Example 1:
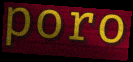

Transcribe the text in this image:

poro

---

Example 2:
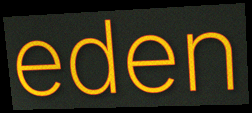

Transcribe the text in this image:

eden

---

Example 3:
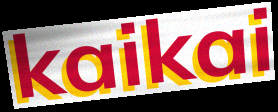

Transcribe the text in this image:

kaikai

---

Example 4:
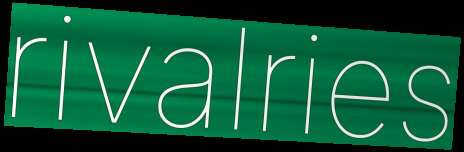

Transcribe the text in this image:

rivalries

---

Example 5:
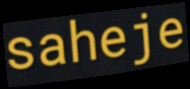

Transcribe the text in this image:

saheje